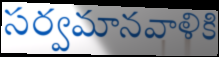
సర్వమానవాళికి